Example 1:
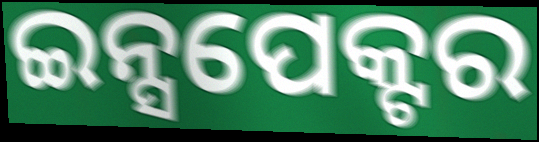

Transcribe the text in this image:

ଇନ୍ସପେକ୍ଟର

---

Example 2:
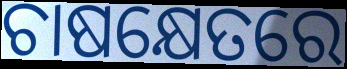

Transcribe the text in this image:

ଚାଷକ୍ଷେତରେ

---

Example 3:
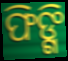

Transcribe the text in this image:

ଫିଙ୍ଗି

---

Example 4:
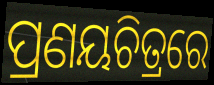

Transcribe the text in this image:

ପ୍ରଣୟଚିତ୍ରରେ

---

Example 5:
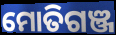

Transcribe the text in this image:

ମୋତିଗଞ୍ଜ